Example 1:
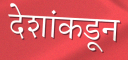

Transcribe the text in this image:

देशांकडून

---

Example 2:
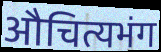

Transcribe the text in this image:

औचित्यभंग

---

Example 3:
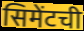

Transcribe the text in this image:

सिमेंटची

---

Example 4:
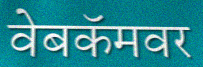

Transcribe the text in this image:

वेबकॅमवर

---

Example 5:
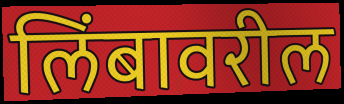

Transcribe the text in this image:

लिंबावरील